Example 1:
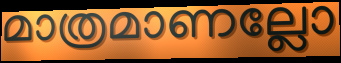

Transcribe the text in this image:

മാത്രമാണല്ലോ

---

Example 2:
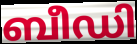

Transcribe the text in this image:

ബീഡി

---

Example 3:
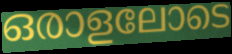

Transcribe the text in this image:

ഒരാളലോടെ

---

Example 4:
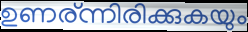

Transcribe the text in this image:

ഉണര്ന്നിരിക്കുകയും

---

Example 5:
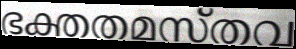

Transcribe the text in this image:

ഭക്തതമസ്തവ